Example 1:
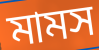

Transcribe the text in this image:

মামস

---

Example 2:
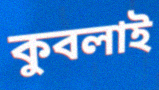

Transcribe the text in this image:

কুবলাই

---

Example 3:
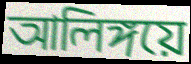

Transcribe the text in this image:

আলিঙ্গয়ে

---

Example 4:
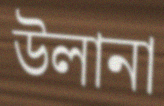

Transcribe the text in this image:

উলানা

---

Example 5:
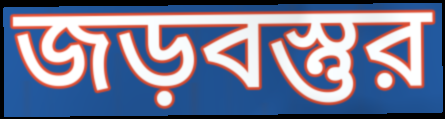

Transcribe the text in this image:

জড়বস্তুর